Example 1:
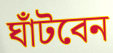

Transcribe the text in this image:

ঘাঁটবেন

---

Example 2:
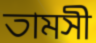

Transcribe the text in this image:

তামসী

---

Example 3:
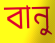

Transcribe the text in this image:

বানু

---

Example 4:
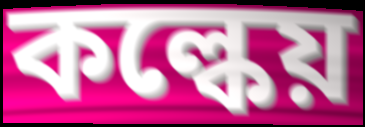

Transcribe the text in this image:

কল্কেয়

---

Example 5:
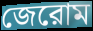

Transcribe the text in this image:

জেরোম